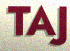
TAJ